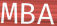
MBA